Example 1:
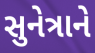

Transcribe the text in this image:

સુનેત્રાને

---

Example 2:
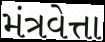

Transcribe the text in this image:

મંત્રવેત્તા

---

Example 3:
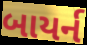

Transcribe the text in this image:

બાયર્ન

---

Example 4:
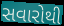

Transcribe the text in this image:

સવારોથી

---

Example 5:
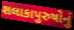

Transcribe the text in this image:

શલાકાપુરુષોનું